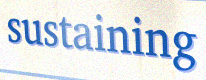
sustaining